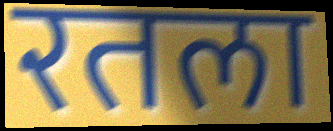
रतला